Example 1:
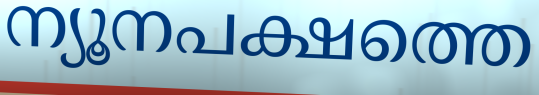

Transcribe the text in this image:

ന്യൂനപക്ഷത്തെ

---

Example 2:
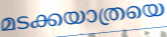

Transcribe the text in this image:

മടക്കയാത്രയെ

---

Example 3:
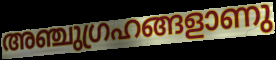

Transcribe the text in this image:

അഞ്ചുഗ്രഹങ്ങളാണു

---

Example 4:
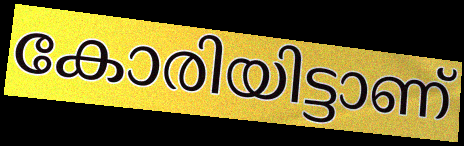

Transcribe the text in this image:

കോരിയിട്ടാണ്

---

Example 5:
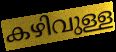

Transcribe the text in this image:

കഴിവുള്ള